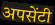
अपसेंटी